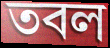
তবল